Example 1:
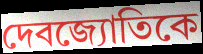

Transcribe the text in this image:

দেবজ্যোতিকে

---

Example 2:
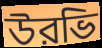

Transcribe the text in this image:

উরভি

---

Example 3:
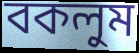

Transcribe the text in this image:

বকলুম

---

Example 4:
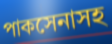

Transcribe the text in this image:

পাকসেনাসহ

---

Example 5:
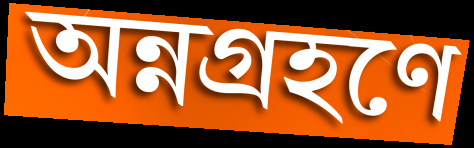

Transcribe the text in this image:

অন্নগ্রহণে